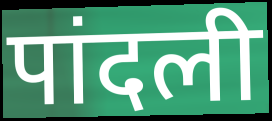
पांदली